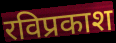
रविप्रकाश